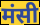
मंसी